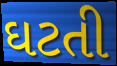
ઘટતી